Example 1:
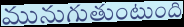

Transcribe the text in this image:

మునుగుతుంటుంది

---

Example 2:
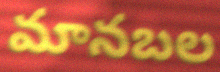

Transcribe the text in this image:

మానబల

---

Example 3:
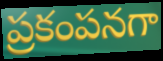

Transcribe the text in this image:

ప్రకంపనగా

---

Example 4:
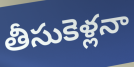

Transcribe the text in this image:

తీసుకెళ్లనా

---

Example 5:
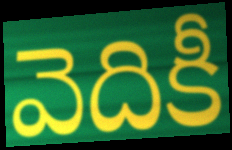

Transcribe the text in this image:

వెదికీ